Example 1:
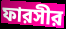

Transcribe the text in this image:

ফারসীর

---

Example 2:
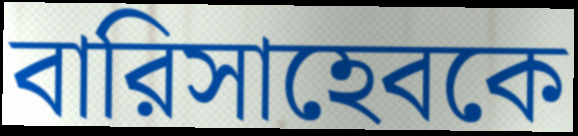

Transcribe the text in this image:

বারিসাহেবকে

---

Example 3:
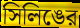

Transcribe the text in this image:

সিলিঙের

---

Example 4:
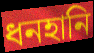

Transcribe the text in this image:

ধনহানি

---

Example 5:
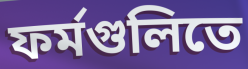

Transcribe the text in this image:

ফর্মগুলিতে